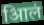
आिलं